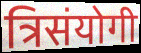
त्रिसंयोगी